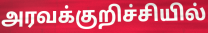
அரவக்குறிச்சியில்